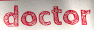
doctor